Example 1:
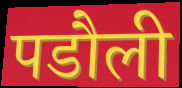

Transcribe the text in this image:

पडौली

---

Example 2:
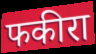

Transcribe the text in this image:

फकीरा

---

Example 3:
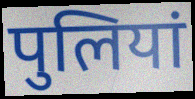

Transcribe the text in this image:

पुलियां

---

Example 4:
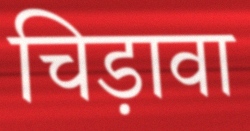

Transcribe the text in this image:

चिड़ावा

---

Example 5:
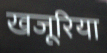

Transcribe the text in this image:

खजूरिया